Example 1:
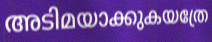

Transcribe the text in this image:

അടിമയാക്കുകയത്രേ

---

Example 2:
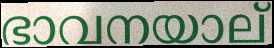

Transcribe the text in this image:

ഭാവനയാല്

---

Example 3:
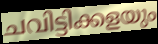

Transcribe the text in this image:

ചവിട്ടിക്കളയും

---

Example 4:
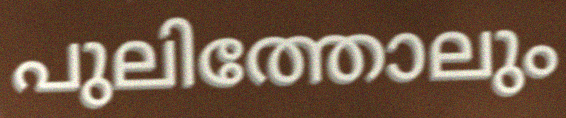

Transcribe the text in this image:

പുലിത്തോലും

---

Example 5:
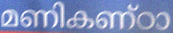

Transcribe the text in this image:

മണികണ്ഠാ